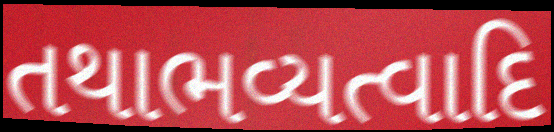
તથાભવ્યત્વાદિ